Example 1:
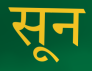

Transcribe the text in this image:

सून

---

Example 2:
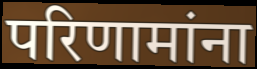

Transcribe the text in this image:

परिणामांना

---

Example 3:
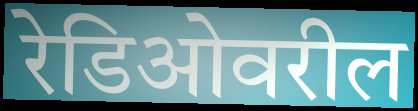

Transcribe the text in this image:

रेडिओवरील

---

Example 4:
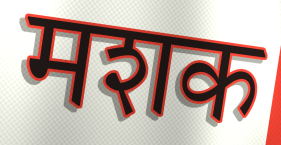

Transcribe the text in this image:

मशक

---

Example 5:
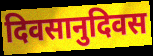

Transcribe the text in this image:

दिवसानुदिवस